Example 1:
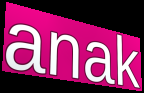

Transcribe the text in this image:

anak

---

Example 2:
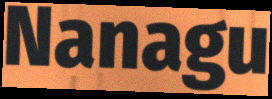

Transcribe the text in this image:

Nanagu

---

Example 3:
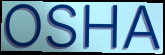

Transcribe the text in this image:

OSHA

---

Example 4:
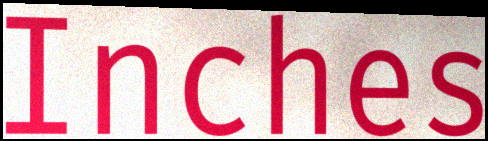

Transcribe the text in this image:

Inches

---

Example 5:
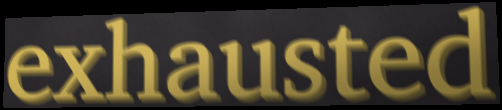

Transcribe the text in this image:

exhausted